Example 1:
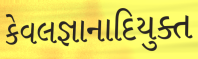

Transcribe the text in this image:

કેવલજ્ઞાનાદિયુક્ત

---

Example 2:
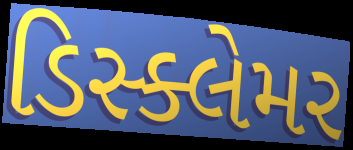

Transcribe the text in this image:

ડિસ્ક્લેમર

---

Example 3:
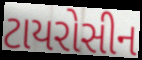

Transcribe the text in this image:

ટાયરોસીન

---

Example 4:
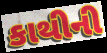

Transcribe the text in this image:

કાથીની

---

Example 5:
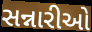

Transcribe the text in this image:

સન્નારીઓ